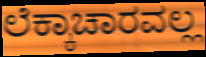
ಲೆಕ್ಕಾಚಾರವಲ್ಲ